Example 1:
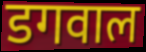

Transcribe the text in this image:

डगवाल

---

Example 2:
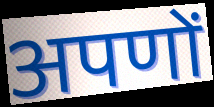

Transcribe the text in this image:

अपणों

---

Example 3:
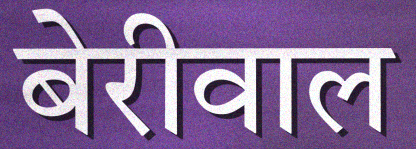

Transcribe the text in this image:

बेरीवाल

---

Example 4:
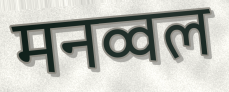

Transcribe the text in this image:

मनव्वल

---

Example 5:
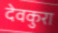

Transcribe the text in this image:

देवकुरा